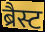
ब्रैस्ट